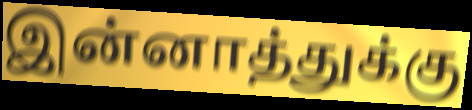
இன்னாத்துக்கு